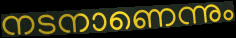
നടനാണെന്നും